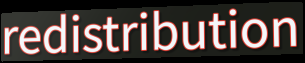
redistribution